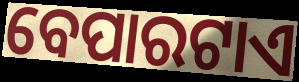
ବେପାରଟାଏ